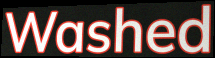
Washed